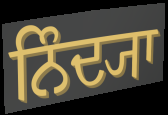
ਨਿੰਦ੍ਯਾ